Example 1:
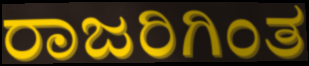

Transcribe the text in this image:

ರಾಜರಿಗಿಂತ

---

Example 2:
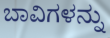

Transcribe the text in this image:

ಬಾವಿಗಳನ್ನು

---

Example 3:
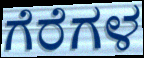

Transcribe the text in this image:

ಗೆರೆಗಳ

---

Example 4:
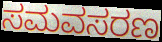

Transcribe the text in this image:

ಸಮವಸರಣ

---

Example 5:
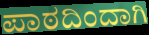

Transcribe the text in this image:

ಪಾಠದಿಂದಾಗಿ